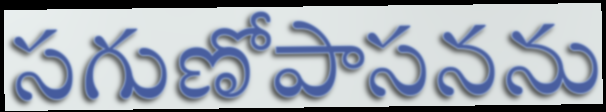
సగుణోపాసనను